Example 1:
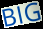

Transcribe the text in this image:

BIG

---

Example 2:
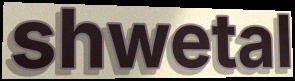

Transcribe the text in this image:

shwetal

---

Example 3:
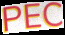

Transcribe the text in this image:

PEC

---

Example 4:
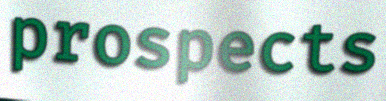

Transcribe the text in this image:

prospects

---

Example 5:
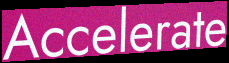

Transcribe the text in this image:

Accelerate